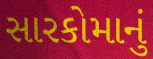
સારકોમાનું